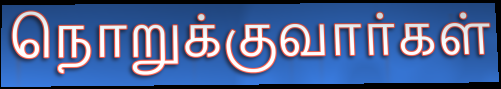
நொறுக்குவார்கள்